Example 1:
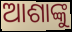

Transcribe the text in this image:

ଆଶାଙ୍କୁ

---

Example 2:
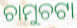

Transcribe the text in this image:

ଚାମୁଚଟା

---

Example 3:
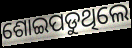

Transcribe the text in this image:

ଶୋଇପଡୁଥିଲେ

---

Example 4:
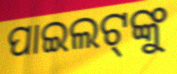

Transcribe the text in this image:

ପାଇଲଟ୍‌ଙ୍କୁ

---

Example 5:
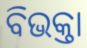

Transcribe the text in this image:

ବିଭକ୍ତା